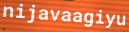
nijavaagiyu